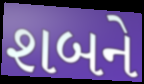
શબને